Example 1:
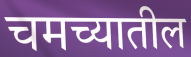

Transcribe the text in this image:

चमच्यातील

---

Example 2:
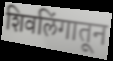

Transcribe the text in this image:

शिवलिंगातून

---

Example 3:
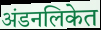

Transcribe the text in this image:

अंडनलिकेत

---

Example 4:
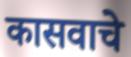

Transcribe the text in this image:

कासवाचे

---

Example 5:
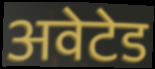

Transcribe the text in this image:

अवेटेड